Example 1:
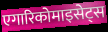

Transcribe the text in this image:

एगारिकोमाइसेट्स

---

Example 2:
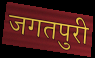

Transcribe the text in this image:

जगतपुरी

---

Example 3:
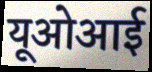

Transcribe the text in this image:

यूओआई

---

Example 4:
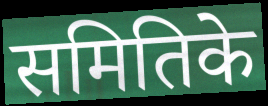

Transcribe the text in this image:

समितिके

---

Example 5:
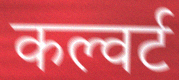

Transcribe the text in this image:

कल्वर्ट